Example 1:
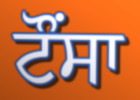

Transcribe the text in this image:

ਟੌਂਸਾ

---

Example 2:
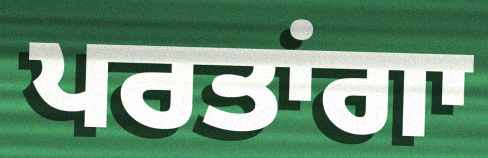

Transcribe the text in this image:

ਪਰਤਾਂਗਾ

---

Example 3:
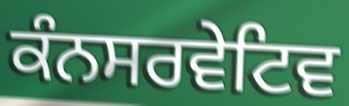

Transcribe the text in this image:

ਕੰਨਸਰਵੇਟਿਵ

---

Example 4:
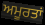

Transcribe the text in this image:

ਅਮੂਰਤਾਂ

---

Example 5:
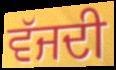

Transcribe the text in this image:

ਵੱਜਦੀ